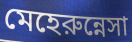
মেহেরুন্নেসা